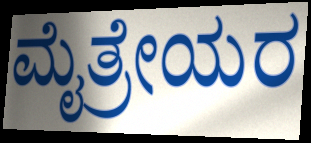
ಮೈತ್ರೇಯರ